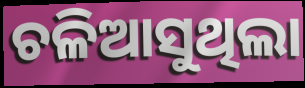
ଚଳିଆସୁଥିଲା